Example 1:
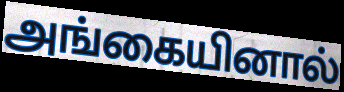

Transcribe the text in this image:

அங்கையினால்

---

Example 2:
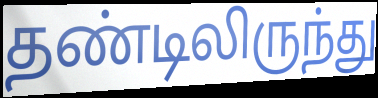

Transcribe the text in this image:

தண்டிலிருந்து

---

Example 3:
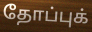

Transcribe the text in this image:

தோப்புக்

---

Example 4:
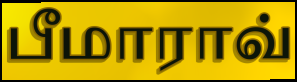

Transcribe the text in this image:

பீமாராவ்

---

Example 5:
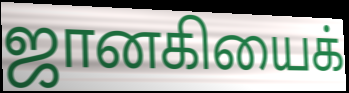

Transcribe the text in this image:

ஜானகியைக்